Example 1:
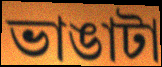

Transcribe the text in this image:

ভাঙাটা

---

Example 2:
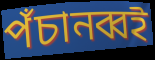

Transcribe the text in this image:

পঁচানব্বই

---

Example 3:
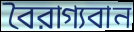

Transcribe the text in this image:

বৈরাগ্যবান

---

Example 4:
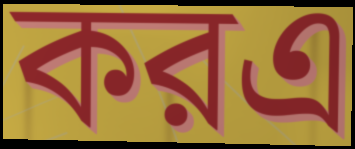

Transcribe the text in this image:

করএ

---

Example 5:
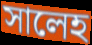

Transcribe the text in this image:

সালেহ